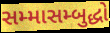
સમ્માસમ્બુદ્ધો